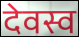
देवस्व